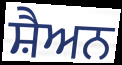
ਸ਼ੈਅਨ